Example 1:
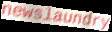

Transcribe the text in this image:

newslaundry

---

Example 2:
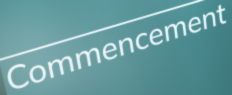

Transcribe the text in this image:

Commencement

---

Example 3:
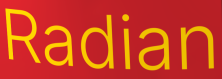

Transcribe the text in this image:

Radian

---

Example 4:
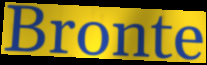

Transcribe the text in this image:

Bronte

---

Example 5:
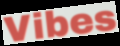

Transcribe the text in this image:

Vibes